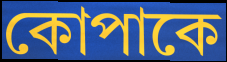
কোপাকে